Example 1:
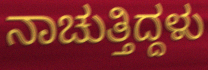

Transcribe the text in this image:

ನಾಚುತ್ತಿದ್ದಳು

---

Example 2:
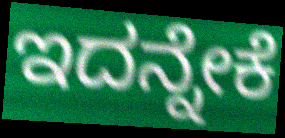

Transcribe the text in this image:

ಇದನ್ನೇಕೆ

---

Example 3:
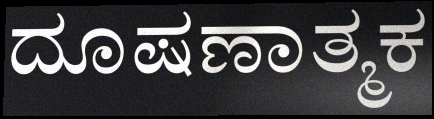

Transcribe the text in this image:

ದೂಷಣಾತ್ಮಕ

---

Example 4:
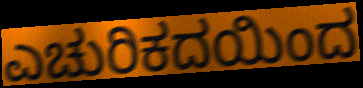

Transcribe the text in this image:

ಎಚುರಿಕದಯಿಂದ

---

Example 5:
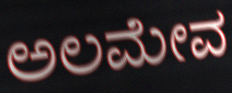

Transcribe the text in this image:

ಅಲಮೇವ